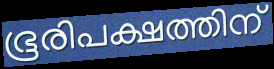
ഭൂരിപക്ഷത്തിന്